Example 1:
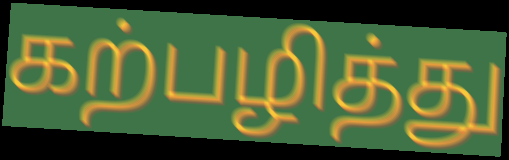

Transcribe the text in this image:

கற்பழித்து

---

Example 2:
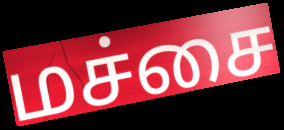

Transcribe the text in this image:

மச்சை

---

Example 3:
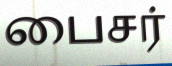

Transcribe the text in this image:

பைசர்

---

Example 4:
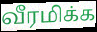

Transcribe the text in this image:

வீரமிக்க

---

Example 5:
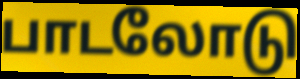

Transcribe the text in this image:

பாடலோடு